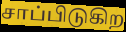
சாப்பிடுகிற